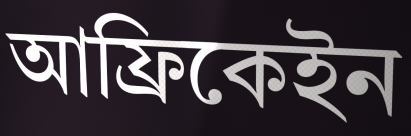
আফ্রিকেইন